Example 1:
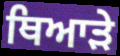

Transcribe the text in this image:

ਥਿਆੜੇ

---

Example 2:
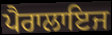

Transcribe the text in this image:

ਪੈਰਾਲਾਇਜ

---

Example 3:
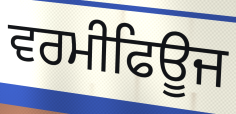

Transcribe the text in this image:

ਵਰਮੀਫਿਊਜ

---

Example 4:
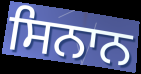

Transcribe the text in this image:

ਸਿਨਾਨ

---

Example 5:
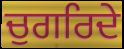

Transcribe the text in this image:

ਚੁਗਰਿਦੇ